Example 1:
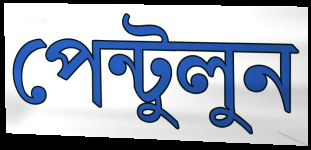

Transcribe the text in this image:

পেন্টুলুন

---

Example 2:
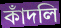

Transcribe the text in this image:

কাঁদলি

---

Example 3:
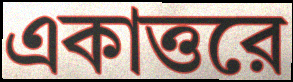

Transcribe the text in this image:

একাত্তরে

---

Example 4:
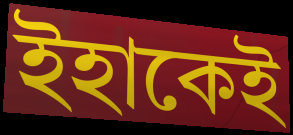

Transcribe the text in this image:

ইহাকেই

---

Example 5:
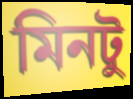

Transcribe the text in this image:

মিনটু